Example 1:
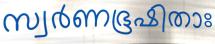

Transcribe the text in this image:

സ്വർണഭൂഷിതാഃ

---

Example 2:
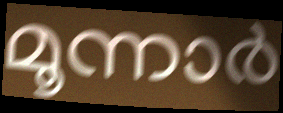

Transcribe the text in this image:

മൂന്നാർ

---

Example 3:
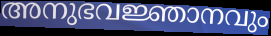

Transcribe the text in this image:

അനുഭവജ്ഞാനവും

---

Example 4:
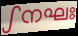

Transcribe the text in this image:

ഽനഘഃ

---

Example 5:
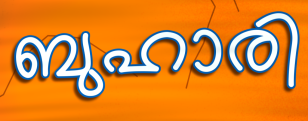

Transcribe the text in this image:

ബുഹാരി